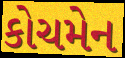
કોચમેન